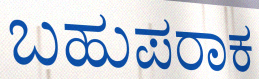
ಬಹುಪರಾಕ